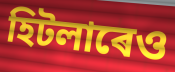
হিটলাৰেও